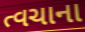
ત્વચાના